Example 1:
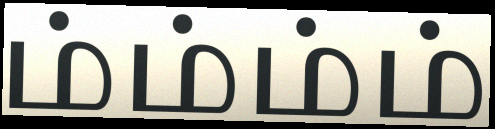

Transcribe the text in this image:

ம்ம்ம்ம்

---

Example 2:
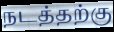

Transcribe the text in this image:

நடத்தற்கு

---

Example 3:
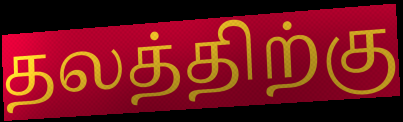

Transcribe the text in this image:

தலத்திற்கு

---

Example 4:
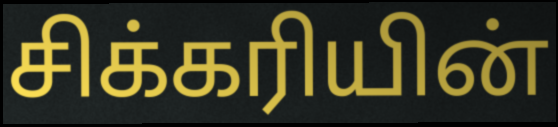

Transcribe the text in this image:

சிக்கரியின்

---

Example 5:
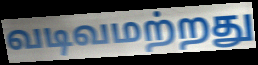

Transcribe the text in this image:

வடிவமற்றது